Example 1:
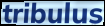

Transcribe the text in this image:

tribulus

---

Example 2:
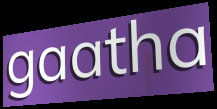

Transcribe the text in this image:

gaatha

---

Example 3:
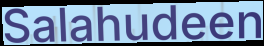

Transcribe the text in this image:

Salahudeen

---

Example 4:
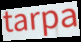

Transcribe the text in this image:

tarpa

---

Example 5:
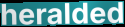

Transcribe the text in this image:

heralded